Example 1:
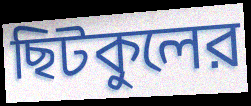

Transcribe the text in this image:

ছিটকুলের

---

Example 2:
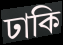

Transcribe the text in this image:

ঢাকি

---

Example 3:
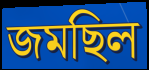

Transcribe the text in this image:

জমছিল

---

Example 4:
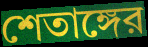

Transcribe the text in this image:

শেতাঙ্গের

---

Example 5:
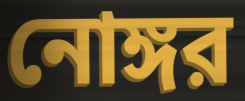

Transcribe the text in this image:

নোঙ্গর